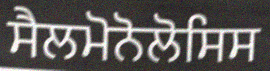
ਸੈਲਮੋਨੋਲੋਸਿਸ